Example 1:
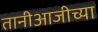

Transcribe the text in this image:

तानीआजीच्या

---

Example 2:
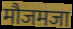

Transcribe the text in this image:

मौजमजा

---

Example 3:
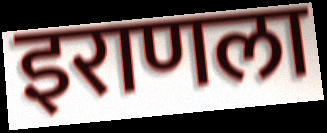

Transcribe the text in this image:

इराणला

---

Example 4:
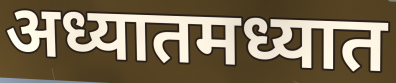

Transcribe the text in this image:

अध्यातमध्यात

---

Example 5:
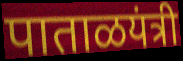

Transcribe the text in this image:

पाताळयंत्री